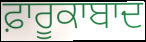
ਫ਼ਾਰੂਕਾਬਾਦ